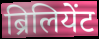
ब्रिलियेंट